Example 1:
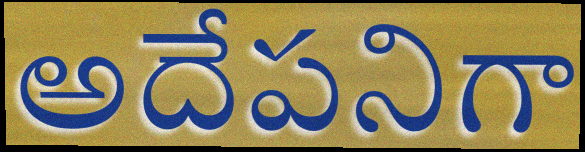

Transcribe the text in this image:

అదేపనిగా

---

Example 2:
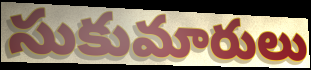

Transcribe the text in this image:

సుకుమారులు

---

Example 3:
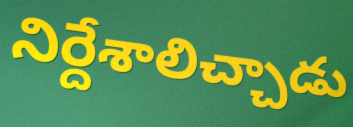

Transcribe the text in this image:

నిర్దేశాలిచ్చాడు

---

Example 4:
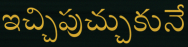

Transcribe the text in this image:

ఇచ్చిపుచ్చుకునే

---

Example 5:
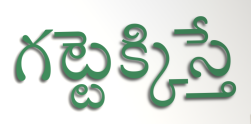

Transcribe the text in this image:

గట్టెక్కిస్తే